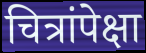
चित्रांपेक्षा